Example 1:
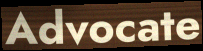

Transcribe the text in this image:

Advocate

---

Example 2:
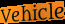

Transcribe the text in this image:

Vehicle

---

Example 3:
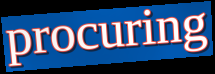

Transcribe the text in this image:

procuring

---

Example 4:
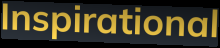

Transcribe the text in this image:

Inspirational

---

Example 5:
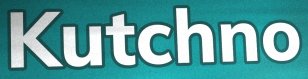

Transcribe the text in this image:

Kutchno